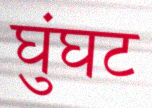
घुंघट